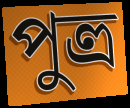
পুত্ত্র